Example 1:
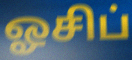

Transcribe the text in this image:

ஓசிப்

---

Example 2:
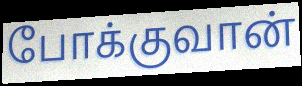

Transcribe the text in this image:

போக்குவான்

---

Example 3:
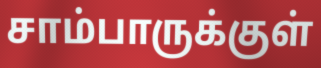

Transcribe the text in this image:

சாம்பாருக்குள்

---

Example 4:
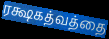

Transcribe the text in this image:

ரக்ஷகத்வத்தை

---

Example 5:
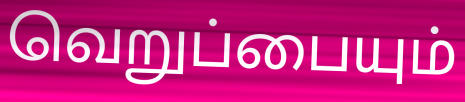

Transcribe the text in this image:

வெறுப்பையும்